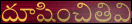
దూషించితివి